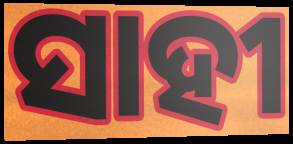
ସାହୀ